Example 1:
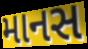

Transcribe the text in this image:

માનસ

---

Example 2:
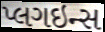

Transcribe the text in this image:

પ્લગઇન્સ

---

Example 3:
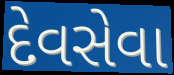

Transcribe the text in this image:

દેવસેવા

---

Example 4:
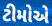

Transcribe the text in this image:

ટીમોએ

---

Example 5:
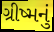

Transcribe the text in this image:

ગ્રીષ્મનું